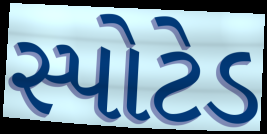
સ્પોટેડ